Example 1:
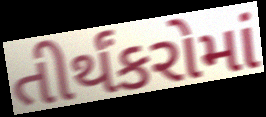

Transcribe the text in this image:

તીર્થંકરોમાં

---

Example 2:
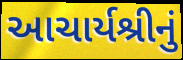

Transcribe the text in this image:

આચાર્યશ્રીનું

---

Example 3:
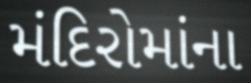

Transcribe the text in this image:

મંદિરોમાંના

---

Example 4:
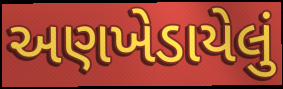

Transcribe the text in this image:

અણખેડાયેલું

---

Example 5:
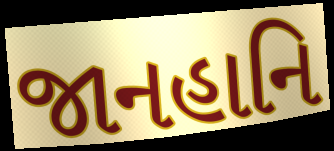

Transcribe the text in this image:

જાનહાનિ